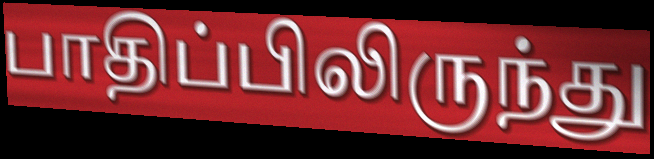
பாதிப்பிலிருந்து